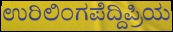
ಉರಿಲಿಂಗಪೆದ್ದಿಪ್ರಿಯ